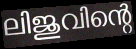
ലിജുവിന്റെ